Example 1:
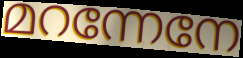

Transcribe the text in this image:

മറന്നേനേ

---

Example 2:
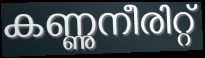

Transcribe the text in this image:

കണ്ണുനീരിറ്റ്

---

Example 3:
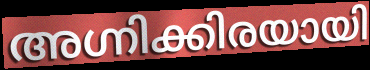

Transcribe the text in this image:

അഗ്നിക്കിരയായി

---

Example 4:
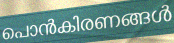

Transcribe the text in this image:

പൊൻകിരണങ്ങൾ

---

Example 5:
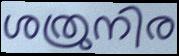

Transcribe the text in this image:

ശത്രുനിര